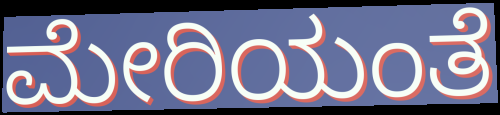
ಮೇರಿಯಂತೆ